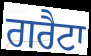
ਗਰੈਟਾ